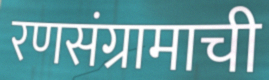
रणसंग्रामाची